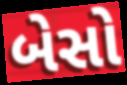
બેસો